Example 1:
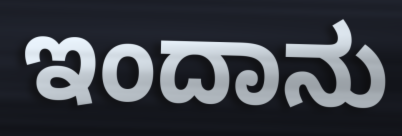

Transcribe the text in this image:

ಇಂದಾನು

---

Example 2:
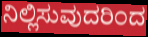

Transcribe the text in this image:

ನಿಲ್ಲಿಸುವುದರಿಂದ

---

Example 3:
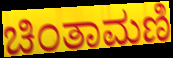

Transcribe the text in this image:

ಚಿಂತಾಮಣಿ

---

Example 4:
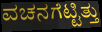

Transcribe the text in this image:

ವಚನಗೆಟ್ಟಿತ್ತು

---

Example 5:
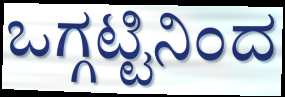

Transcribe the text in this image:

ಒಗ್ಗಟ್ಟಿನಿಂದ